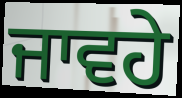
ਜਾਵਹੇ